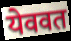
येववत